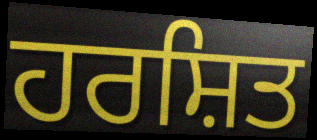
ਹਰਸ਼ਿਤ